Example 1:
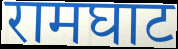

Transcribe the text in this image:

रामघाट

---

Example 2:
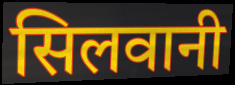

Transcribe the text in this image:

सिलवानी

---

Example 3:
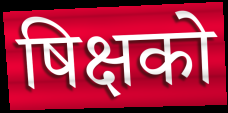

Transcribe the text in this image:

षिक्षको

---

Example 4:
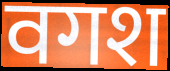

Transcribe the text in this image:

वगश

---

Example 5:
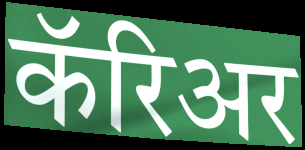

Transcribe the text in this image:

कॅरिअर